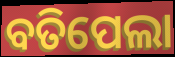
ବତିପେଲା